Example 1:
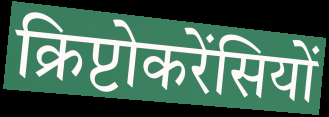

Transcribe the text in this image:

क्रिप्टोकरेंसियों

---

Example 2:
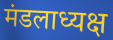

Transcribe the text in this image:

मंडलाध्यक्ष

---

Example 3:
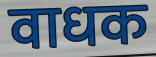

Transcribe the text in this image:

वाधक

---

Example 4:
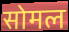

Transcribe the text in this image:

सोमल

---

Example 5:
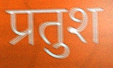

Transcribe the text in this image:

प्रतुश